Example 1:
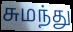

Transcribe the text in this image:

சுமந்து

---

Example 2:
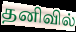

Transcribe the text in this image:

தனிவில்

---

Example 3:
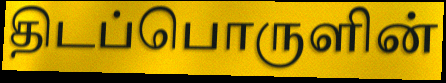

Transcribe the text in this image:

திடப்பொருளின்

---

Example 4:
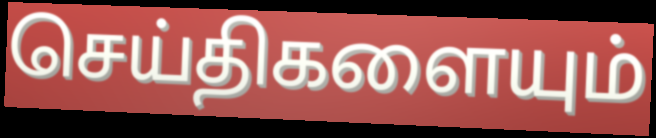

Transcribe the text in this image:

செய்திகளையும்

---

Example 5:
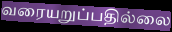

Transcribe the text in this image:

வரையறுப்பதில்லை